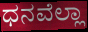
ಧನವೆಲ್ಲಾ